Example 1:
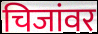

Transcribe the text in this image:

चिजांवर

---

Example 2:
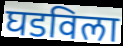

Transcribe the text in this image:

घडविला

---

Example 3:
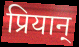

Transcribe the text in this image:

प्रियान्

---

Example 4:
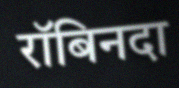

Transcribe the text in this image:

रॉबिनदा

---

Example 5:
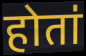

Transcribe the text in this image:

होता॑